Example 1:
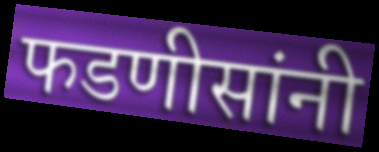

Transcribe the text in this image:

फडणीसांनी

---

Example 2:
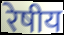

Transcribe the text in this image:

रेषीय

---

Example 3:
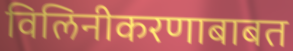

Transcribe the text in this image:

विलिनीकरणाबाबत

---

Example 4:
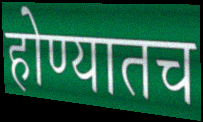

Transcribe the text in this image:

होण्यातच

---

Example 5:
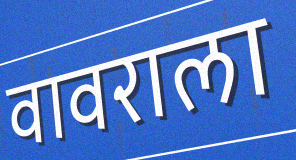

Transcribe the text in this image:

वावराला